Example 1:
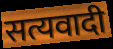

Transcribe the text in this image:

सत्यवादी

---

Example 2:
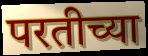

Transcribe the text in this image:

परतीच्या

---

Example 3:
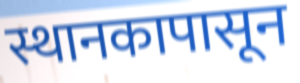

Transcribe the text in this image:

स्थानकापासून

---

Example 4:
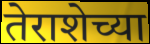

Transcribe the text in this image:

तेराशेच्या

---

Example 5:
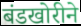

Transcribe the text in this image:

बंडखोरीने